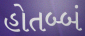
હોતબ્બં